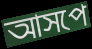
আসপে